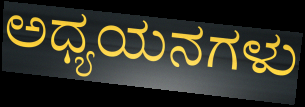
ಅಧ್ಯಯನಗಳು